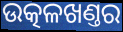
ଉତ୍କଳଖଣ୍ତର